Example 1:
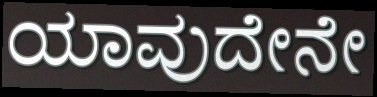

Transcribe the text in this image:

ಯಾವುದೇನೇ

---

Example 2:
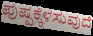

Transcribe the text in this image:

ಪುಷ್ಪಕ್ಕೆಳಸುವುದೆ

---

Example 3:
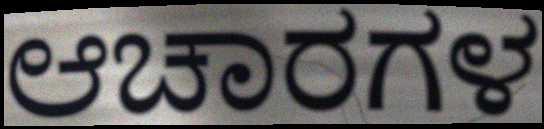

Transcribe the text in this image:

ಆಚಾರಗಳ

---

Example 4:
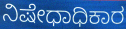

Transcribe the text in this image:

ನಿಷೇಧಾಧಿಕಾರ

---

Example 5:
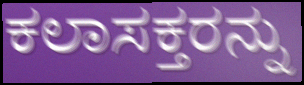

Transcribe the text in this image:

ಕಲಾಸಕ್ತರನ್ನು